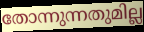
തോന്നുന്നതുമില്ല